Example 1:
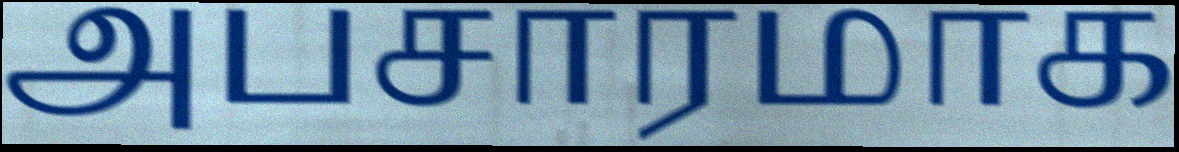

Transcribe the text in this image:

அபசாரமாக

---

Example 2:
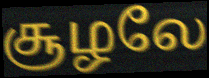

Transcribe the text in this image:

சூழலே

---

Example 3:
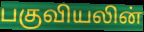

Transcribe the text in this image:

பகுவியலின்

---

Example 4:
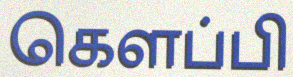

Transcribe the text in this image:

கெளப்பி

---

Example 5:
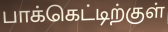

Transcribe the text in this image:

பாக்கெட்டிற்குள்